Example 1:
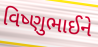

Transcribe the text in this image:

વિષ્ણુભાઈને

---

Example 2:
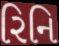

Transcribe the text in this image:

રિનિ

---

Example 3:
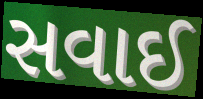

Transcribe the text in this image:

સવાઈ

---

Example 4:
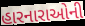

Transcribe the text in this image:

હારનારાઓની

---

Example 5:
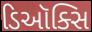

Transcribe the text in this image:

ડિઑક્સિ